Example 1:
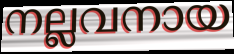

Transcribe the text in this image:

നല്ലവനായ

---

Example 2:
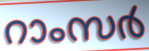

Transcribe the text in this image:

റാംസർ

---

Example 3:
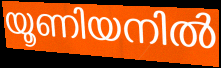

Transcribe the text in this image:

യൂണിയനിൽ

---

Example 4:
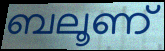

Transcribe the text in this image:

ബലൂണ്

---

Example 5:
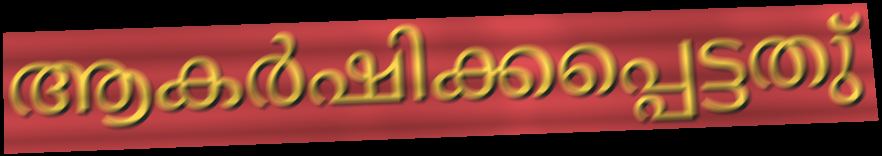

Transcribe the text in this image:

ആകർഷിക്കപ്പെട്ടതു്